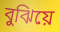
বুঝিয়ে